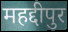
महद्दीपुर